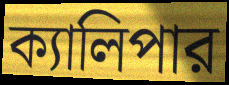
ক্যালিপার